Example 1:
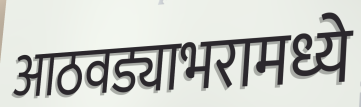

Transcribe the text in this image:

आठवड्याभरामध्ये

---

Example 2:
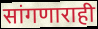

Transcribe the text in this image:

सांगणाराही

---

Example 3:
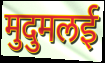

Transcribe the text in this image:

मुदुमलई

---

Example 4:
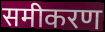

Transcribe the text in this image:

समीकरण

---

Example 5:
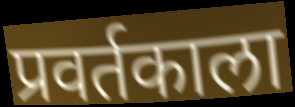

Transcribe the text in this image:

प्रवर्तकाला